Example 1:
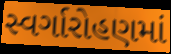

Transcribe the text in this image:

સ્વર્ગારોહણમાં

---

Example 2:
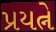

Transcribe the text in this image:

પ્રયત્ને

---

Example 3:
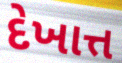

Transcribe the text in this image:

દેખાત્ત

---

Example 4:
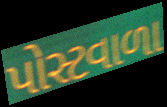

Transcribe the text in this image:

પોસ્ટવાળા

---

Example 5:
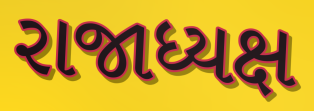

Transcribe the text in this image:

રાજાધ્યક્ષ